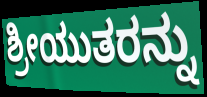
ಶ್ರೀಯುತರನ್ನು